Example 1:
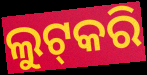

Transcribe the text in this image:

ଲୁଟ୍‍କରି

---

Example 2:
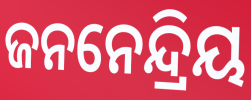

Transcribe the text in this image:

ଜନନେନ୍ଦ୍ରିୟ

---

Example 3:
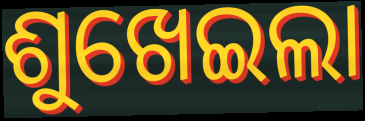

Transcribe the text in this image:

ଶୁଖେଇଲା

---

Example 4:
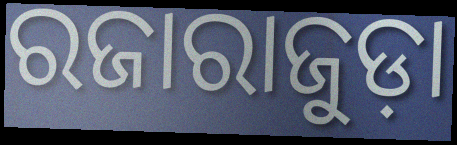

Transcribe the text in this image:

ରଜାରାଜୁଡ଼ା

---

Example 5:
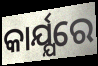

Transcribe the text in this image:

କାର୍ଯ୍ଯରେ